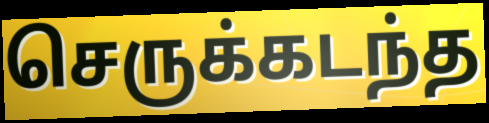
செருக்கடந்த